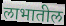
लाभातील